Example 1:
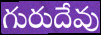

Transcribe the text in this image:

గురుదేవు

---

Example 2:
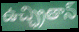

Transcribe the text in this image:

ఉచ్ఛ్రితాన్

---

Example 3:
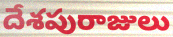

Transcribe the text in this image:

దేశపురాజులు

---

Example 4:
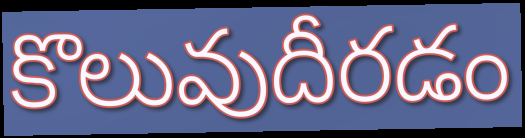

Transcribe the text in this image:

కొలువుదీరడం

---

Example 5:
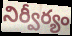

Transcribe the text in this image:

నిర్వీర్యం